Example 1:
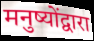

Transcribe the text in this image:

मनुष्योंद्वारा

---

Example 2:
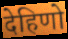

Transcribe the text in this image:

देहिणो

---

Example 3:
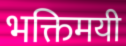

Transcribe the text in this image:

भक्तिमयी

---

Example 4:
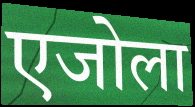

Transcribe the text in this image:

एजोला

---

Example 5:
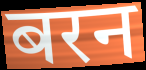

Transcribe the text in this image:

बरन